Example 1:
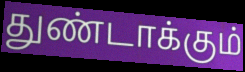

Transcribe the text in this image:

துண்டாக்கும்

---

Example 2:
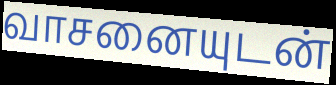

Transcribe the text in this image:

வாசனையுடன்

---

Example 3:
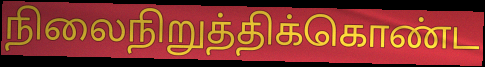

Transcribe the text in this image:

நிலைநிறுத்திக்கொண்ட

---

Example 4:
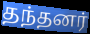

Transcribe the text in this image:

தந்தனர்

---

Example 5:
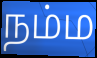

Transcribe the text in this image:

நம்ம